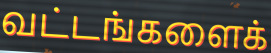
வட்டங்களைக்